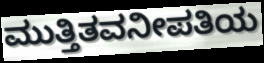
ಮುತ್ತಿತವನೀಪತಿಯ